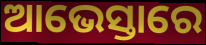
ଆଭେସ୍ତାରେ